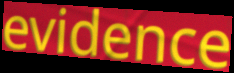
evidence